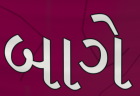
બાગે